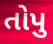
તોપુ